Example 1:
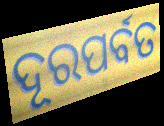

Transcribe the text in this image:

ଦୂରପର୍ବତ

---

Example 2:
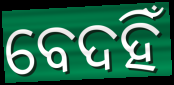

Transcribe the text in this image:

ବେଦହିଁ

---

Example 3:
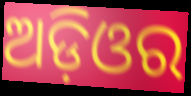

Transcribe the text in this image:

ଅଡ଼ିଓର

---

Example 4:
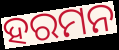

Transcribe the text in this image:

ହରମନ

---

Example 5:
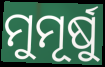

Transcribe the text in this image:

ମୁମୂର୍ଷୁ